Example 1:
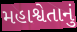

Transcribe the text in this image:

મહાશ્વેતાનું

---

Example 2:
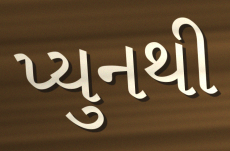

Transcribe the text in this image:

પ્યુનથી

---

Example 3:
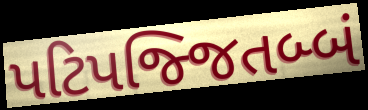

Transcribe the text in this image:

પટિપજ્જિતબ્બં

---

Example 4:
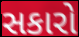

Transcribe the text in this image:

સકારો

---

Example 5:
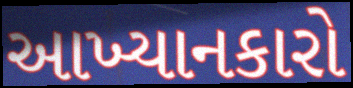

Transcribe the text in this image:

આખ્યાનકારો